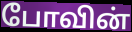
போவின்